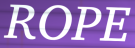
ROPE